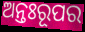
ଅନ୍ତଃରୂପର